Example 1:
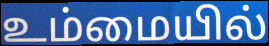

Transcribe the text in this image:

உம்மையில்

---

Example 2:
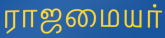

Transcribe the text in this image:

ராஜமையர்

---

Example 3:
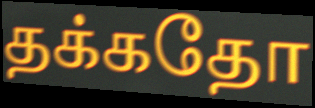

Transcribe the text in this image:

தக்கதோ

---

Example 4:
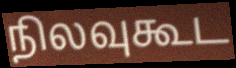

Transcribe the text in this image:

நிலவுகூட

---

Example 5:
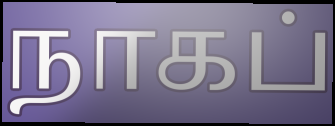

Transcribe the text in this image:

நாகப்